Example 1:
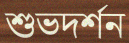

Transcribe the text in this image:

শুভদর্শন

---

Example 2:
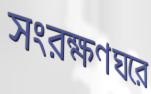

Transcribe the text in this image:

সংরক্ষণঘরে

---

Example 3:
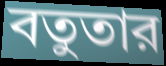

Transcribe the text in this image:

বতুতার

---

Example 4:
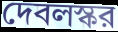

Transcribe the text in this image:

দেবলস্কর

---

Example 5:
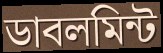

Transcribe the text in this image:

ডাবলমিন্ট